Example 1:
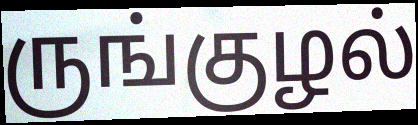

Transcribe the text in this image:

ருங்குழல்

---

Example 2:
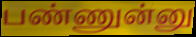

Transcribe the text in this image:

பண்ணுன்னு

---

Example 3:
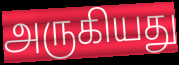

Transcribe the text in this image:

அருகியது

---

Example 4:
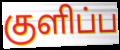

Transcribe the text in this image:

குளிப்ப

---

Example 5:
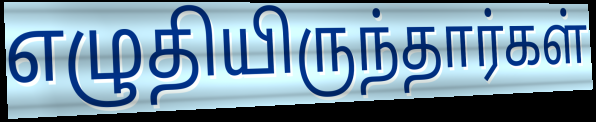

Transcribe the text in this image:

எழுதியிருந்தார்கள்